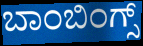
ಬಾಂಬಿಂಗ್ಸ್